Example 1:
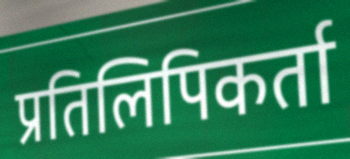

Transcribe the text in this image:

प्रतिलिपिकर्ता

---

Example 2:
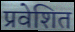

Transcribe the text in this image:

प्रवेशित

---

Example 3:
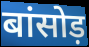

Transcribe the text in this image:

बांसोड़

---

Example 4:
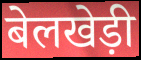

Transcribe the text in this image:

बेलखेड़ी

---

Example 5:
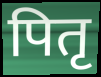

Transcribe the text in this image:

पितृ